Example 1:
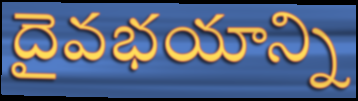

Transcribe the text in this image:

దైవభయాన్ని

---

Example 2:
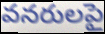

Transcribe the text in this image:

వనరులపై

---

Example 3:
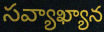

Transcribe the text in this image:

సవ్యాఖ్యాన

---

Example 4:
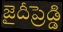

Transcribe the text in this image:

జైదీప్రెడ్డి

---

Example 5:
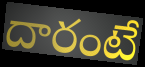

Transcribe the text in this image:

దారంటే